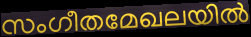
സംഗീതമേഖലയിൽ